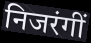
निजरंगीं